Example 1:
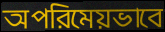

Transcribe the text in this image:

অপরিমেয়ভাবে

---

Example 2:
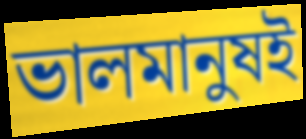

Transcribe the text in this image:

ভালমানুষই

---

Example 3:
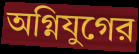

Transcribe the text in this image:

অগ্নিযুগের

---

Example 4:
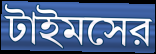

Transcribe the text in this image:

টাইমসের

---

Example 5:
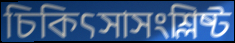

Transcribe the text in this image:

চিকিৎসাসংশ্লিষ্ট